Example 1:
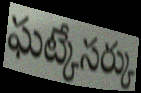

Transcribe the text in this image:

ఘట్కేసర్కు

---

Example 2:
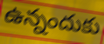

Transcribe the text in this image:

ఉన్నందుకు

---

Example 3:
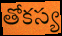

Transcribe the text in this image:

తోకస్య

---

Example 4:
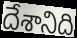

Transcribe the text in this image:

దేశానిది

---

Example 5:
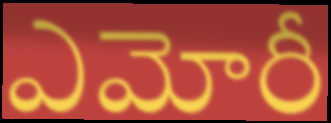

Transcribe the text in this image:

ఎమోరీ